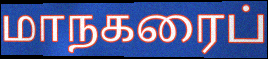
மாநகரைப்